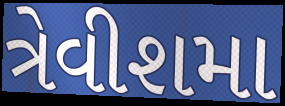
ત્રેવીશમા